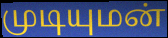
முடியுமன்